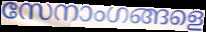
സേനാംഗങ്ങളെ